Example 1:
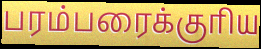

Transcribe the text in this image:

பரம்பரைக்குரிய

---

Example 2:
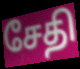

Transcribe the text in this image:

சேதி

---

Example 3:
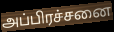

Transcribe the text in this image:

அப்பிரச்சனை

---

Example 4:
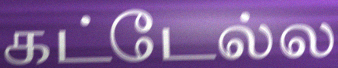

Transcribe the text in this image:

கட்டேல்ல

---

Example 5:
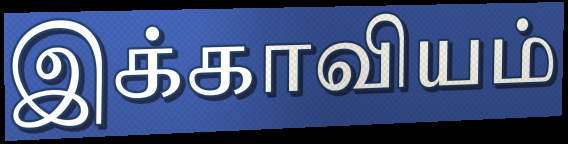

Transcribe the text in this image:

இக்காவியம்